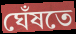
ঘেঁষতে